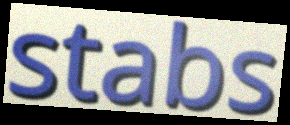
stabs